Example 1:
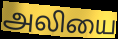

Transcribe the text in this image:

அலியை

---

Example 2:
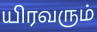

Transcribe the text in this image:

யிரவரும்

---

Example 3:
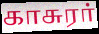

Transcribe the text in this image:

காசுரர்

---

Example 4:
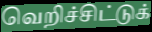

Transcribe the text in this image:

வெறிச்சிட்டுக்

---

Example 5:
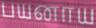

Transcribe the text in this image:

பயனாய